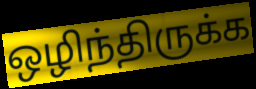
ஒழிந்திருக்க